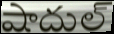
షాదుల్